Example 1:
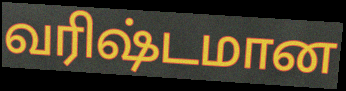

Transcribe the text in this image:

வரிஷ்டமான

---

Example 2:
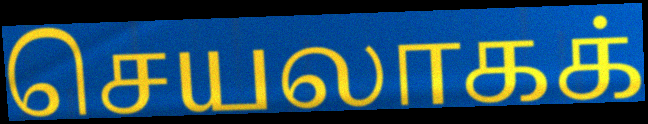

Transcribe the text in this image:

செயலாகக்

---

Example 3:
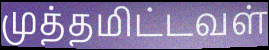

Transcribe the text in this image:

முத்தமிட்டவள்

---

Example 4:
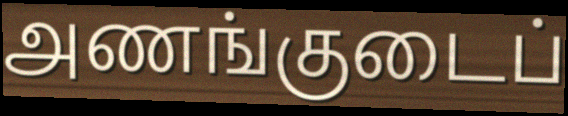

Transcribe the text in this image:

அணங்குடைப்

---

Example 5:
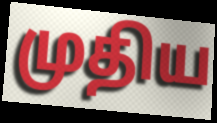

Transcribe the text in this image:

முதிய